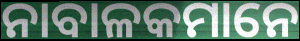
ନାବାଳକମାନେ